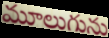
మూలుగును